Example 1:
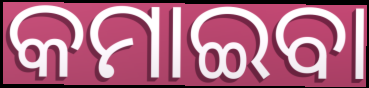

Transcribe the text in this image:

କମାଇବା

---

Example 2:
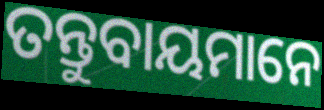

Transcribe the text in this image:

ତନ୍ତୁବାୟମାନେ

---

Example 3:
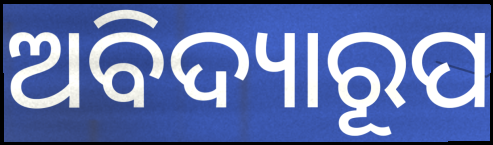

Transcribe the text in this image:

ଅବିଦ୍ୟାରୂପ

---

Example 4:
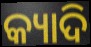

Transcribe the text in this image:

କ୍ୟାଦି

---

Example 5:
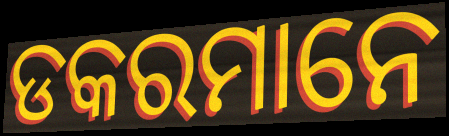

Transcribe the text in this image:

ଡକରମାନେ